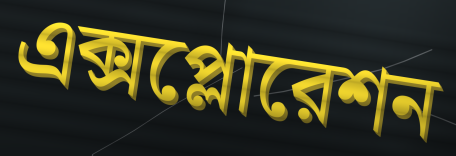
এক্সপ্লোরেশন